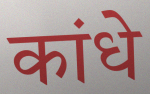
कांधे